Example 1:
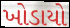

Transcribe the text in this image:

ખોડાયો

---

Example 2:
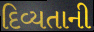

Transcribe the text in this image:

દિવ્યતાની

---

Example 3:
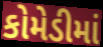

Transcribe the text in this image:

કોમેડીમાં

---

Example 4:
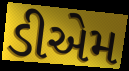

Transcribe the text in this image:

ડીએમ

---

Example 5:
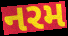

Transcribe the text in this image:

નરમ